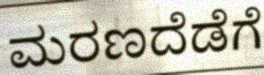
ಮರಣದೆಡೆಗೆ